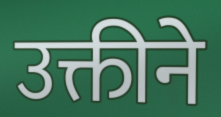
उक्तीने